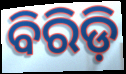
ବିରିଡ଼ି